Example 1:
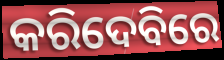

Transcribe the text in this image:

କରିଦେବିରେ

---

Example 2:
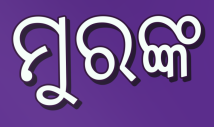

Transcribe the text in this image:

ମୁରଙ୍କ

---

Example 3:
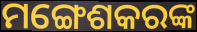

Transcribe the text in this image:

ମଙ୍ଗେଶକରଙ୍କ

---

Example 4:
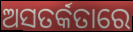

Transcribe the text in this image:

ଅସତର୍କତାରେ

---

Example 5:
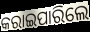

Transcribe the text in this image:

କରାଇପାରିଲେ